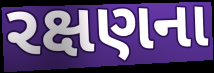
રક્ષણના